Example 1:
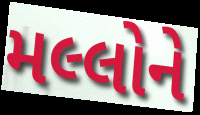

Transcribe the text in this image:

મલ્લોને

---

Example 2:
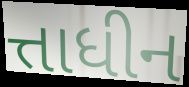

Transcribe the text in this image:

ત્તાધીન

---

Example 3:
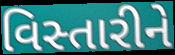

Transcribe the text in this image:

વિસ્તારીને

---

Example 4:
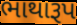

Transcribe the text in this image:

ભાથારૂપ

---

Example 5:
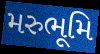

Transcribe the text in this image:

મરુભૂમિ